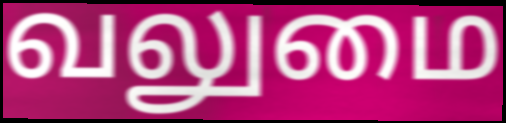
வலுமை